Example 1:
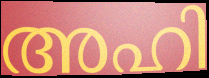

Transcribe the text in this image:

അഹി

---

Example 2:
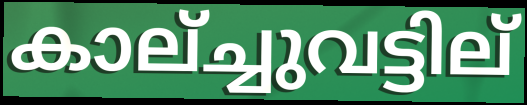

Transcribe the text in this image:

കാല്ച്ചുവട്ടില്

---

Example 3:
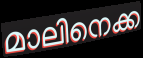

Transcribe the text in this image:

മാലിനെക്ക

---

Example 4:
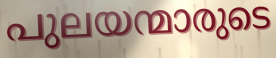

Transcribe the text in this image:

പുലയന്മാരുടെ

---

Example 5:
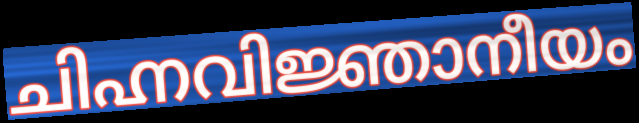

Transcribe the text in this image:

ചിഹ്നവിജ്ഞാനീയം